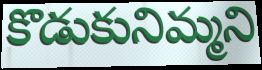
కొడుకునిమ్మని